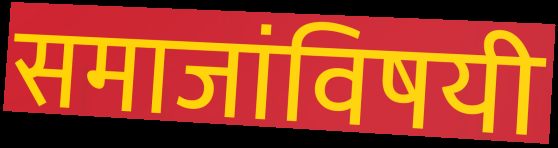
समाजांविषयी